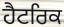
ਹੈਟਰਿਕ